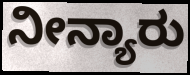
ನೀನ್ಯಾರು